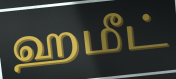
ஹமீட்